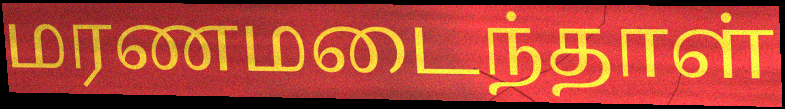
மரணமடைந்தாள்